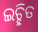
ଇଚ୍ଛିତ